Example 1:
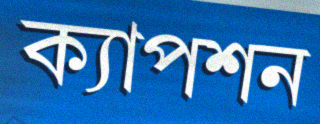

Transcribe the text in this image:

ক্যাপশন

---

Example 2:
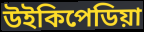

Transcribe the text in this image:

উইকিপেডিয়া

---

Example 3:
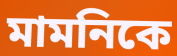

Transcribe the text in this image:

মামনিকে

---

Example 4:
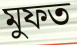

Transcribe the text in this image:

মুফত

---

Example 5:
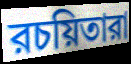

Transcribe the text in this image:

রচয়িতারা